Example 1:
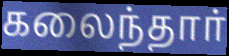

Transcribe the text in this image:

கலைந்தார்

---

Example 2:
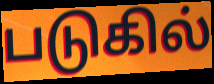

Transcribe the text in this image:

படுகில்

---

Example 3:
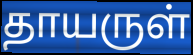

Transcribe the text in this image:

தாயருள்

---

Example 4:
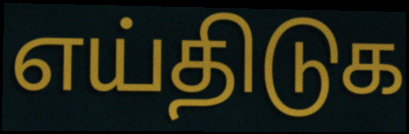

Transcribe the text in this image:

எய்திடுக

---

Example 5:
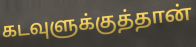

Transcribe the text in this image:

கடவுளுக்குத்தான்